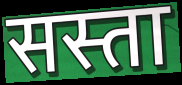
सस्ता